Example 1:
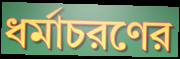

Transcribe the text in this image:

ধর্মাচরণের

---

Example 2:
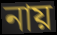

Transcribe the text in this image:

নায়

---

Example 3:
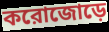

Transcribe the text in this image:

করোজোড়ে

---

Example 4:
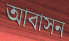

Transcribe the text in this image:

আবাসন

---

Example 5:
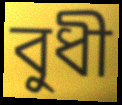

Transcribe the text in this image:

বুধী